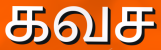
கவச